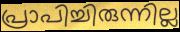
പ്രാപിച്ചിരുന്നില്ല